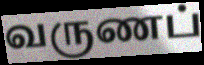
வருணப்